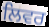
ਲਿਵਰ